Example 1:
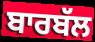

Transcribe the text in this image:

ਬਾਰਬੱਲ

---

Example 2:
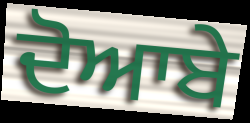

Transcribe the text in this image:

ਦੋਆਬੇ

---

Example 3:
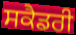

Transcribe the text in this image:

ਸਕੈਡਰੀ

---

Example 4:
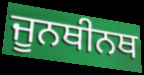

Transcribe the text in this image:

ਜੂਨਥੀਨਥ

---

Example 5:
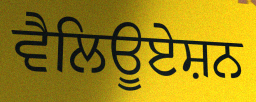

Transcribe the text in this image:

ਵੈਲਿਊਏਸ਼ਨ